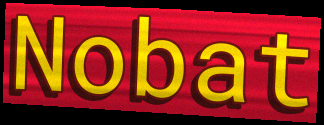
Nobat